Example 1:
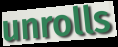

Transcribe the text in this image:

unrolls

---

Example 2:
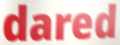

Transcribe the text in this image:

dared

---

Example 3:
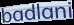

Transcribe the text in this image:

badlani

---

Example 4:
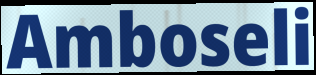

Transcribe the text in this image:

Amboseli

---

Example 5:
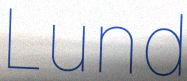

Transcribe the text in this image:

Lund